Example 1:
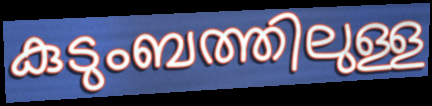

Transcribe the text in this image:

കുടുംബത്തിലുള്ള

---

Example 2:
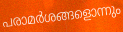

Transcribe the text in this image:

പരാമർശങ്ങളൊന്നും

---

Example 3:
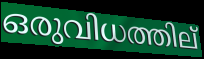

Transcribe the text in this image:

ഒരുവിധത്തില്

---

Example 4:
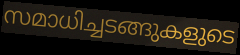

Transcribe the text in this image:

സമാധിച്ചടങ്ങുകളുടെ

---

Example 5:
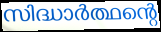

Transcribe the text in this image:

സിദ്ധാർത്ഥന്റെ